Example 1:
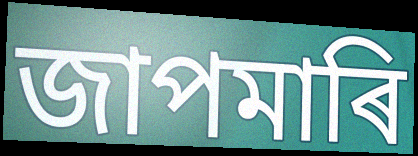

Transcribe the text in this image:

জাপমাৰি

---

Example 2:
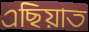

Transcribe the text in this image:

এছিয়াত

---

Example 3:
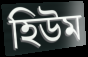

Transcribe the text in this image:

হিউম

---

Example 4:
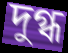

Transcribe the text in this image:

দুগ্ধ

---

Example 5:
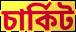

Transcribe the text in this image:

চাৰ্কিট